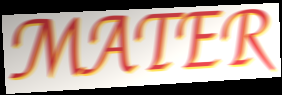
MATER